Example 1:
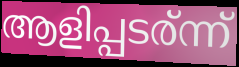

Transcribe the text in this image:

ആളിപ്പടര്ന്ന്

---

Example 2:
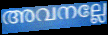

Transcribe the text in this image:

അവനല്ലേ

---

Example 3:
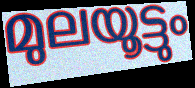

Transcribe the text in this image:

മുലയൂട്ടും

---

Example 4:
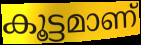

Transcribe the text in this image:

കൂട്ടമാണ്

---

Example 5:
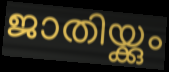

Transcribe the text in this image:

ജാതിയ്ക്കും